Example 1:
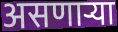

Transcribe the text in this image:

असणाऱ्या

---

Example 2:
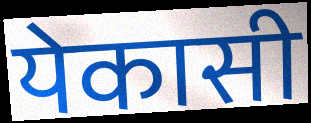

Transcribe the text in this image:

येकासी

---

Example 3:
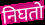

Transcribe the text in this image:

निघतो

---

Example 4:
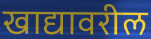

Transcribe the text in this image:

खाद्यावरील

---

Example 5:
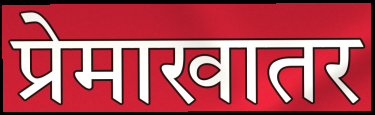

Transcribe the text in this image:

प्रेमाखातर